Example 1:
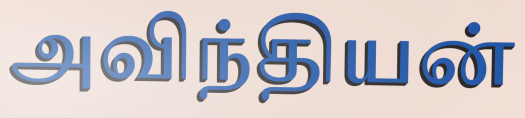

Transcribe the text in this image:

அவிந்தியன்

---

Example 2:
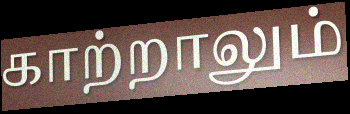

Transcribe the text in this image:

காற்றாலும்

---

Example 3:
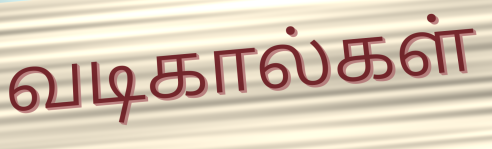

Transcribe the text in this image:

வடிகால்கள்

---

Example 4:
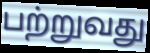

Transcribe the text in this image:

பற்றுவது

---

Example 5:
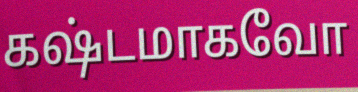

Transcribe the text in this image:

கஷ்டமாகவோ